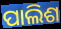
ପାଲିଶ